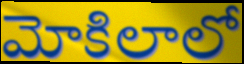
మోకిలాలో